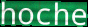
hoche